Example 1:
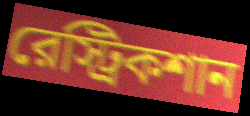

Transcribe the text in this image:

রেস্ট্রিকশান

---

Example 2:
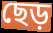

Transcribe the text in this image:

ছেড়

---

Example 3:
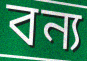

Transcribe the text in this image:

বন্য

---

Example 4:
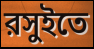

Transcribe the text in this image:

রসুইতে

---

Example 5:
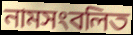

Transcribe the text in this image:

নামসংবলিত